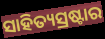
ସାହିତ୍ୟସ୍ରଷ୍ଟାର